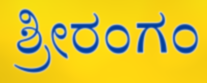
ಶ್ರೀರಂಗಂ